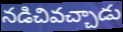
నడిచివచ్చాడు